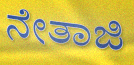
ನೇತಾಜಿ